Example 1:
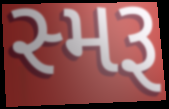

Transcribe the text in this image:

સ્મરૂ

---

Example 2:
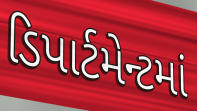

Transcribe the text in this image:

ડિપાર્ટમેન્ટમાં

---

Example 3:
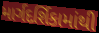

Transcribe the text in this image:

માર્ગદર્શિકામાંથી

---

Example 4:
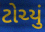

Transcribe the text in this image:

ટોચ્યું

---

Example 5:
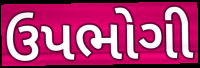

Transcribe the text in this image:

ઉપભોગી